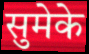
सुमेके